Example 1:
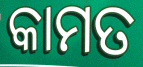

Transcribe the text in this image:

କାମତ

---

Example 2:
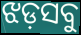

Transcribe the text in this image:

ଝଡ଼ସବୁ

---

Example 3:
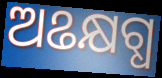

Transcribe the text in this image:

ଅଌକ୍ଷଗ୍ଧ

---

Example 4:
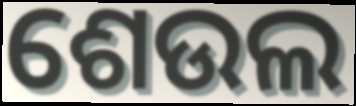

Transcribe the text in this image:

ଶେଉଲ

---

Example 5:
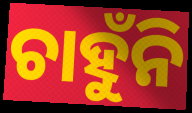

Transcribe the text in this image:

ଚାହୁଁନି